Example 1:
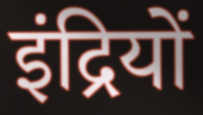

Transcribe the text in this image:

इंद्रियों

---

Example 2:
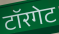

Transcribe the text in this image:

टॉरगेट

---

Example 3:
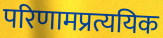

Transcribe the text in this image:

परिणामप्रत्ययिक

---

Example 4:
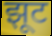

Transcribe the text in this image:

झूट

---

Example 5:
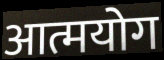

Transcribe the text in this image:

आत्मयोग